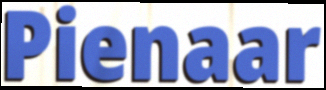
Pienaar